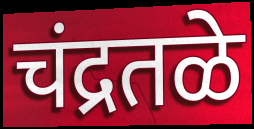
चंद्रतळे